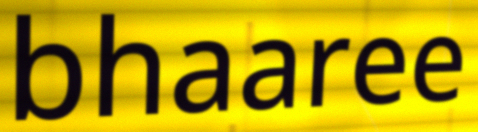
bhaaree